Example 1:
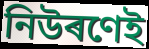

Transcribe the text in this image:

নিউৰণেই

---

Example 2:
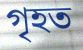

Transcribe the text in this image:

গৃহত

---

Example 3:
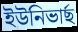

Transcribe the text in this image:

ইউনিভাৰ্ছ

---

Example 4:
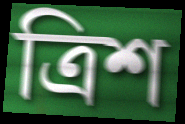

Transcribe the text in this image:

ত্ৰিশ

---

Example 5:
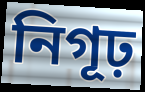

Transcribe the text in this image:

নিগূঢ়